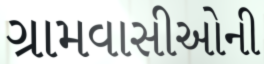
ગ્રામવાસીઓની